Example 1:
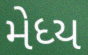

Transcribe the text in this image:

મેધ્ય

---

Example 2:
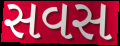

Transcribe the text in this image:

સવસ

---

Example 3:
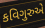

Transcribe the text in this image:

કવિગુરુએ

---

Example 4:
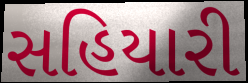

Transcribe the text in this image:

સહિયારી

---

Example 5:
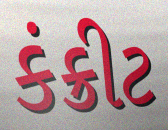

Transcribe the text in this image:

કંક્રીટ